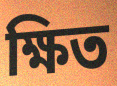
ক্ষিত